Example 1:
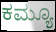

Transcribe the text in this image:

ಕಮ್ಯೂ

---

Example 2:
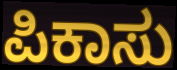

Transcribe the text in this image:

ಪಿಕಾಸು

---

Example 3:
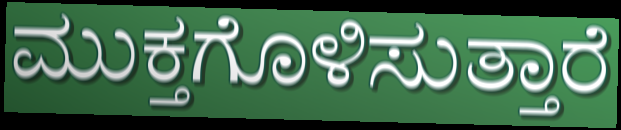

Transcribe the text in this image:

ಮುಕ್ತಗೊಳಿಸುತ್ತಾರೆ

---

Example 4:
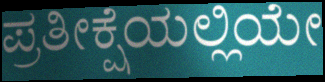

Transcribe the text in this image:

ಪ್ರತೀಕ್ಷೆಯಲ್ಲಿಯೇ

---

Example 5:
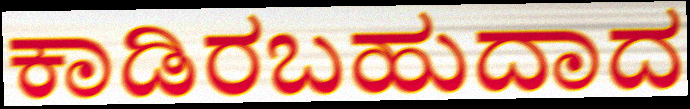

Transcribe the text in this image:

ಕಾಡಿರಬಹುದಾದ